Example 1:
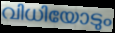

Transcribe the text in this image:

വിധിയോടും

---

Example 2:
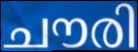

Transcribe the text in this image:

ചൗരി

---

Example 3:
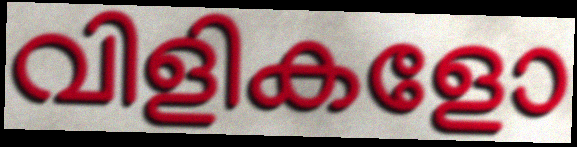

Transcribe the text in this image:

വിളികളോ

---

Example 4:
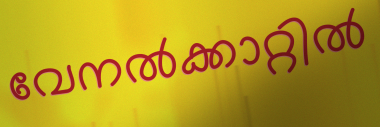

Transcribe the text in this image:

വേനൽക്കാറ്റിൽ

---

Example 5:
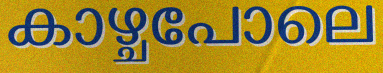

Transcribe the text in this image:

കാഴ്ചപോലെ